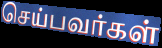
செய்பவர்கள்